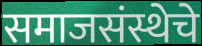
समाजसंस्थेचे